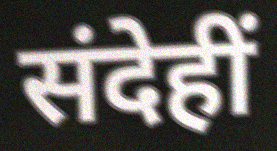
संदेहीं